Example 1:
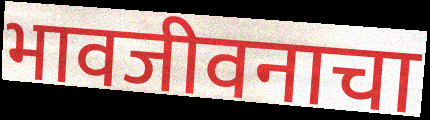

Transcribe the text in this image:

भावजीवनाचा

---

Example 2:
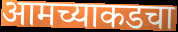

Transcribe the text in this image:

आमच्याकडचा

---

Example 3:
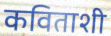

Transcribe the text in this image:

कविताशी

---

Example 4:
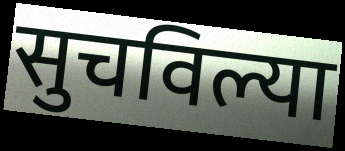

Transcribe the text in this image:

सुचविल्या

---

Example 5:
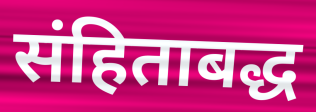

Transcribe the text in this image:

संहिताबद्ध